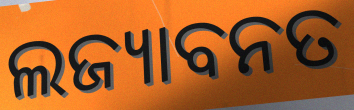
ଲଜ୍ୟାବନତ